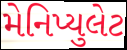
મેનિપ્યુલેટ